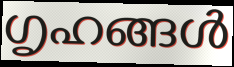
ഗൃഹങ്ങൾ